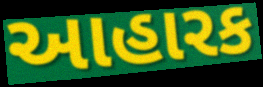
આહારક